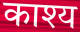
काश्य